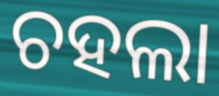
ଚହଲା